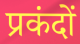
प्रकंदों